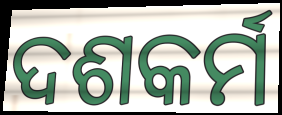
ଦଶକର୍ମ